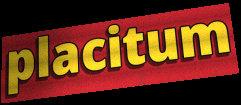
placitum